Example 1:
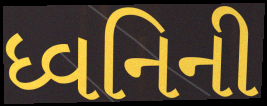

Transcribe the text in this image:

ધ્વનિની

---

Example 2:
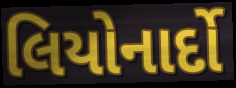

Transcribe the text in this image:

લિયોનાર્દો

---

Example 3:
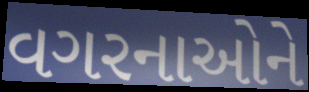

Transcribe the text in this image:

વગરનાઓને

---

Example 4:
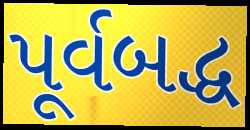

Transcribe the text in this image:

પૂર્વબદ્ધ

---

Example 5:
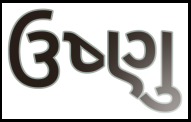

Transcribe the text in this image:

ઉષ્ણુ